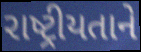
રાષ્ટ્રીયતાને